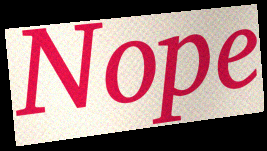
Nope